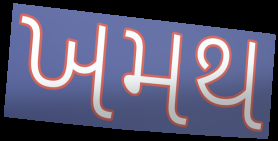
ખમથ